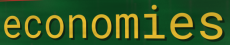
economies